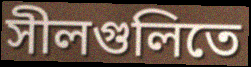
সীলগুলিতে